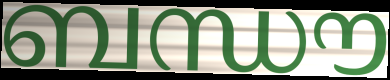
ബന്ധൗ